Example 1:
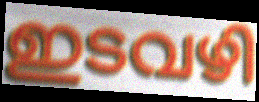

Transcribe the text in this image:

ഇടവഴി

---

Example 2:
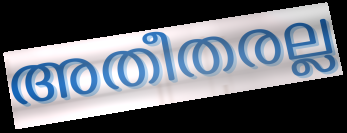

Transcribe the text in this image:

അതീതരല്ല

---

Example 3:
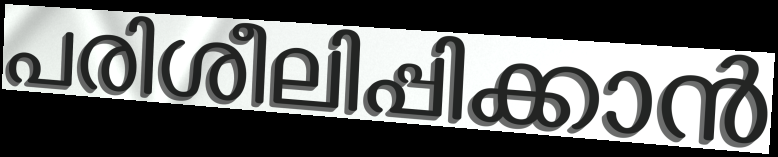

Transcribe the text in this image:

പരിശീലിപ്പിക്കാൻ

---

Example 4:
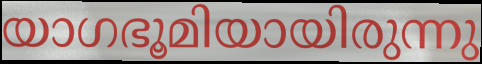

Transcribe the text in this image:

യാഗഭൂമിയായിരുന്നു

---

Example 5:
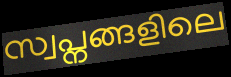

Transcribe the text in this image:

സ്വപ്നങ്ങളിലെ